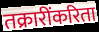
तक्रारींकरिता